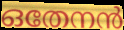
ഒതേനൻ